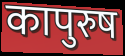
कापुरुष